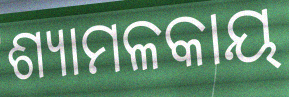
ଶ୍ୟାମଳକାୟ